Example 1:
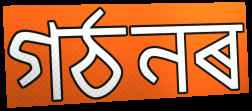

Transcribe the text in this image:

গঠনৰ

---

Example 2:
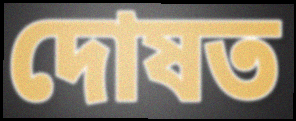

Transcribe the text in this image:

দোষত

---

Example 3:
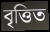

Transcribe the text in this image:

বৃত্তিত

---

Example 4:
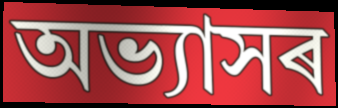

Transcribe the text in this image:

অভ্যাসৰ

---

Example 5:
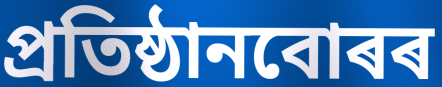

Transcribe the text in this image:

প্ৰতিষ্ঠানবোৰৰ